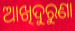
ଆଖିଦୁରୁଣା